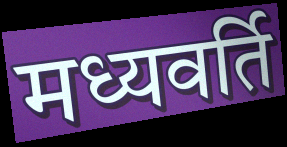
मध्यवर्ति